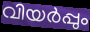
വിയർപ്പും